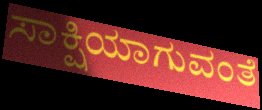
ಸಾಕ್ಷಿಯಾಗುವಂತೆ